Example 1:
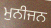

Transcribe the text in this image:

ਮੁਨੀਜਨ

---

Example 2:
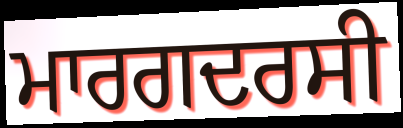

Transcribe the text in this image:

ਮਾਰਗਦਰਸੀ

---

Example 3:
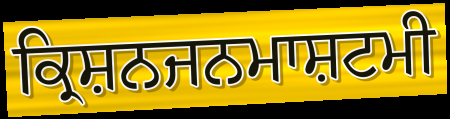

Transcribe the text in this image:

ਕ੍ਰਿਸ਼ਨਜਨਮਾਸ਼ਟਮੀ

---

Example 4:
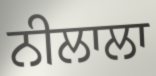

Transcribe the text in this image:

ਨੀਲਾਲਾ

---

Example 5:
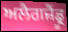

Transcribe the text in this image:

ਅਲੈਗਜ਼ੈਂਡ੍ਰੂ